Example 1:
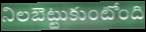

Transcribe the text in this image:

నిలబెట్టుకుంటోంది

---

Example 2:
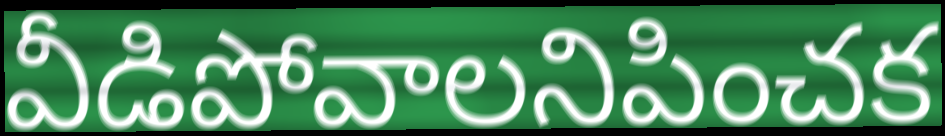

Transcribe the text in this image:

వీడిపోవాలనిపించక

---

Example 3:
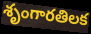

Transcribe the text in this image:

శృంగారతిలక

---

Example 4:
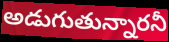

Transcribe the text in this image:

అడుగుతున్నారనీ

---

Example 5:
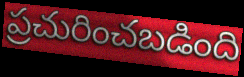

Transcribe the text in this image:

ప్రచురించబడింది